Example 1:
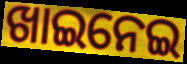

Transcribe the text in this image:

ଖାଇନେଇ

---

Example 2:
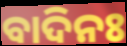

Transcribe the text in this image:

ବାଦିନଃ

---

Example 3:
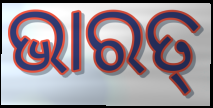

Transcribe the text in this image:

ଭାରତ୍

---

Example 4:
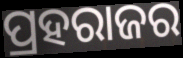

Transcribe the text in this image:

ପ୍ରହରାଜର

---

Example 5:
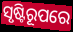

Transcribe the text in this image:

ସୃଷ୍ଟିରୂପରେ